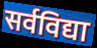
सर्वविद्या